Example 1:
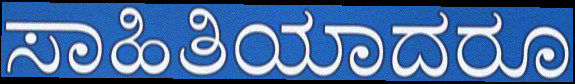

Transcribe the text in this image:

ಸಾಹಿತಿಯಾದರೂ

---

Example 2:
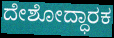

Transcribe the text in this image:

ದೇಶೋದ್ಧಾರಕ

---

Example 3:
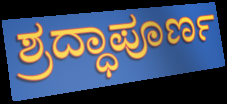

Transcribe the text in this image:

ಶ್ರದ್ಧಾಪೂರ್ಣ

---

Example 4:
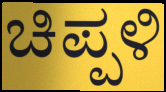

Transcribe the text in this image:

ಚಿಪ್ಪಳಿ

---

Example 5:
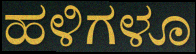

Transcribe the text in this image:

ಹಳಿಗಳೂ